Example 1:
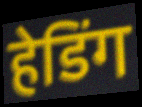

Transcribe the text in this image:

हेडिंग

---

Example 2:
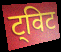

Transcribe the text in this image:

ट्विट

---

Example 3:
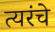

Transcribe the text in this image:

त्यरंचे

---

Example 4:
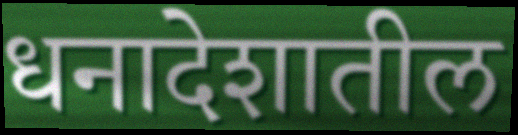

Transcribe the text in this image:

धनादेशातील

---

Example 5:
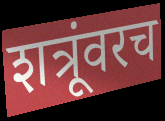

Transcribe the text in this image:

शत्रूंवरच